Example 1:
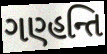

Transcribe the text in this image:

ગણ્હન્તિ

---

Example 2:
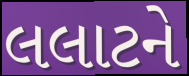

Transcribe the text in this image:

લલાટને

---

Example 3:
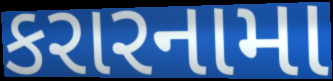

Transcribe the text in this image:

કરારનામા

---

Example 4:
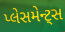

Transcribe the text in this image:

પ્લેસમેન્ટ્સ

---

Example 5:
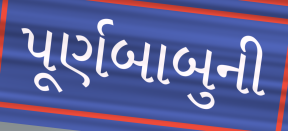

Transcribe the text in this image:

પૂર્ણબાબુની